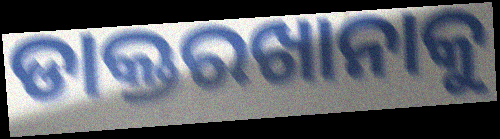
ଡାକ୍ତରଖାନାକୁ